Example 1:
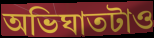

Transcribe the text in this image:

অভিঘাতটাও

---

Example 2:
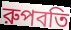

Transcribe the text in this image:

রুপবতি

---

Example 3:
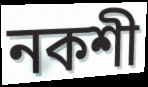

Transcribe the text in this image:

নকশী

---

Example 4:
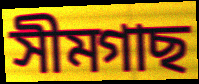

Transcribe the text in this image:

সীমগাছ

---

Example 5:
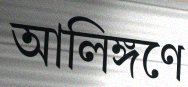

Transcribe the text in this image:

আলিঙ্গণে